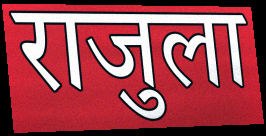
राजुला